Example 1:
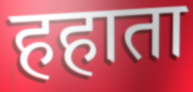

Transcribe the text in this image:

हहाता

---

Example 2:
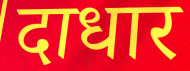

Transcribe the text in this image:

दाधार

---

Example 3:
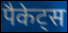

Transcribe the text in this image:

पैकेट्स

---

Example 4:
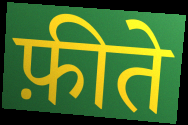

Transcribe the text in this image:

फ़ीते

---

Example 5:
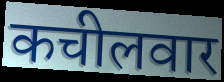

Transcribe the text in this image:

कचीलवार